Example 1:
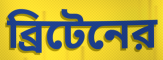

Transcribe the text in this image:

ব্রিটেনের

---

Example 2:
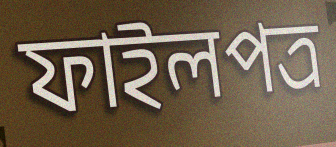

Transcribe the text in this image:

ফাইলপত্র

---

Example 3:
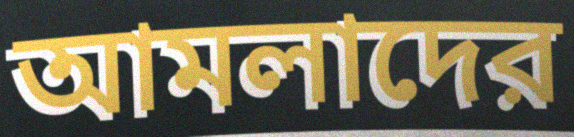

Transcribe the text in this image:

আমলাদের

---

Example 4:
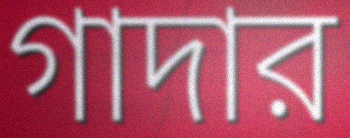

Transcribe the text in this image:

গাদার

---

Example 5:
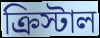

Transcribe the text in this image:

ক্রিস্টাল